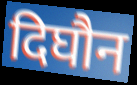
दिघौन